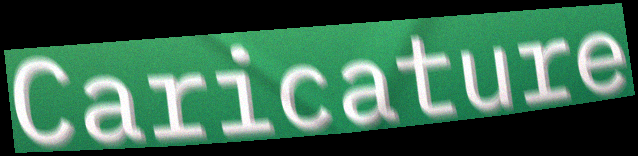
Caricature